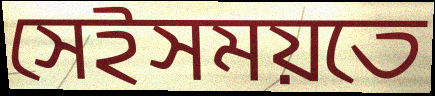
সেইসময়তে